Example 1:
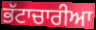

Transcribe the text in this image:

ਭੱਟਾਚਾਰੀਆ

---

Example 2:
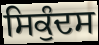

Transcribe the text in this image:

ਸਿਕੁੰਦਸ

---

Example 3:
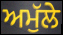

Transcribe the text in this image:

ਅਮੁੱਲੇ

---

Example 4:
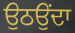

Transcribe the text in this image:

ਉਠਉਂਦਾ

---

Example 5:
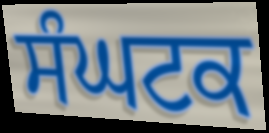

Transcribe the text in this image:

ਸੰਘਟਕ